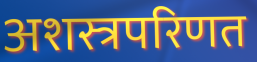
अशस्त्रपरिणत